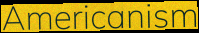
Americanism